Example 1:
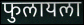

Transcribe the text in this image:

फुलायला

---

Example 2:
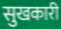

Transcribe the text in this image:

सुखकारी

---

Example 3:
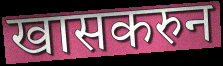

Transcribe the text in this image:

खासकरुन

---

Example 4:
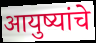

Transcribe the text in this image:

आयुष्यांचे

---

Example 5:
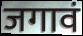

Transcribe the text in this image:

जगावं